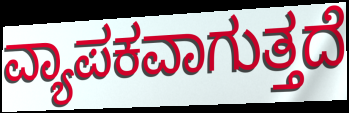
ವ್ಯಾಪಕವಾಗುತ್ತದೆ